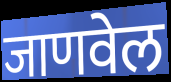
जाणवेल